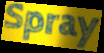
Spray